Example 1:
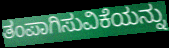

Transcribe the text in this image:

ತಂಪಾಗಿಸುವಿಕೆಯನ್ನು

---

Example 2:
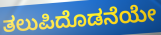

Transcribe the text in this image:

ತಲುಪಿದೊಡನೆಯೇ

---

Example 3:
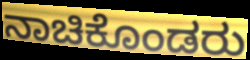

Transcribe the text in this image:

ನಾಚಿಕೊಂಡರು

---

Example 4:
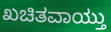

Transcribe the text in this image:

ಖಚಿತವಾಯ್ತು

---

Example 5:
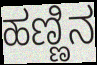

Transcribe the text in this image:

ಹಣ್ಣಿನ